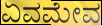
ಏವಮೇವ